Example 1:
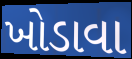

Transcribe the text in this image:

ખોડાવા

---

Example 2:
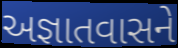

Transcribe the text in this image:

અજ્ઞાતવાસને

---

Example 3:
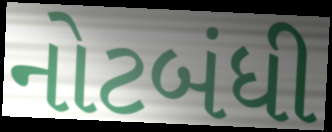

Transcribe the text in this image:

નોટબંધી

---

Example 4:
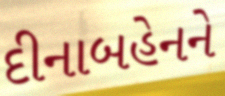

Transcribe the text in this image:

દીનાબહેનને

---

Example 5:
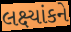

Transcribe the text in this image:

લક્ષ્યાંકને